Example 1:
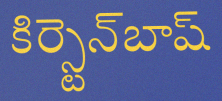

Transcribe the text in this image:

కిర్స్టెన్‌బాష్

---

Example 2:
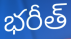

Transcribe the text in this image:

భరీత్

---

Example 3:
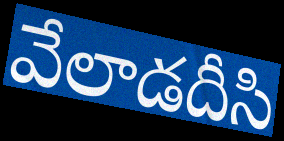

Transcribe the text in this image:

వేలాడదీసి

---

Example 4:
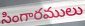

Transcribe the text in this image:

సింగారములు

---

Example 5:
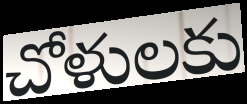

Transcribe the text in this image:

చోళులకు